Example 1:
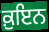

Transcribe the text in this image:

ਕ਼ੁਇਨ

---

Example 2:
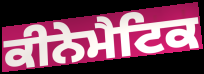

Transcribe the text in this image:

ਕੀਨੇਮੈਟਿਕ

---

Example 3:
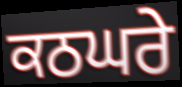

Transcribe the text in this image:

ਕਠਘਰੇ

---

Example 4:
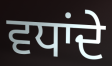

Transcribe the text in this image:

ਵਧਾਂਦੇ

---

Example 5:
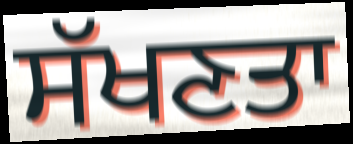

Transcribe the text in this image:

ਸੱਖਣਤਾ